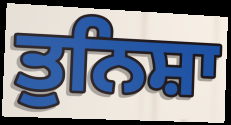
ਤੁਨਿਸ਼ਾ